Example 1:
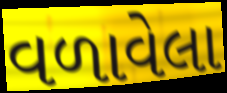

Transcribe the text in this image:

વળાવેલા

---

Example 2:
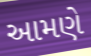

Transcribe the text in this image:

આમણે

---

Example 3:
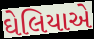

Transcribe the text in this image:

ઘેલિયાએ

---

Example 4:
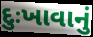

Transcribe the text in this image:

દુઃખાવાનું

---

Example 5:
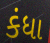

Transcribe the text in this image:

કંધા